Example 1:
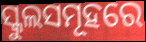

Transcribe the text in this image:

ସ୍କୁଲସମୂହରେ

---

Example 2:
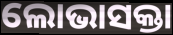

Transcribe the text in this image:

ଲୋଭାସକ୍ତା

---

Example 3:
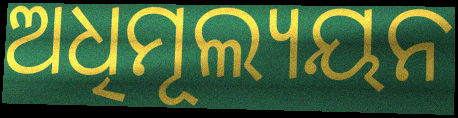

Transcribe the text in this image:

ଅଧିମୂଲ୍ୟୟନ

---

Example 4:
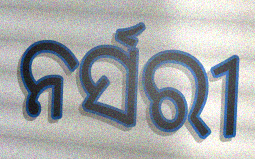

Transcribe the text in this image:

ନର୍ସରୀ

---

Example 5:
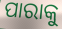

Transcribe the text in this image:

ପାରାକୁ